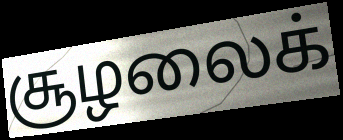
சூழலைக்